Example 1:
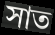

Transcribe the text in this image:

সাত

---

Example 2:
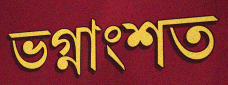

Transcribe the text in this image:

ভগ্নাংশত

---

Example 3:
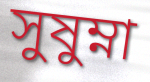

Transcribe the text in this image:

সুষুম্না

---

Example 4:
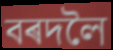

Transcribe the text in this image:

বৰদলৈ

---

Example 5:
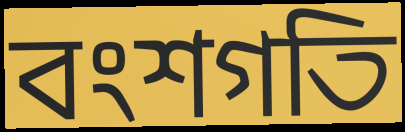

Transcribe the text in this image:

বংশগতি